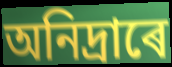
অনিদ্ৰাৰে